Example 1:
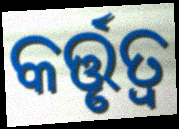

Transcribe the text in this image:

କର୍ତ୍ତୃତ୍ୱ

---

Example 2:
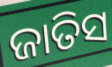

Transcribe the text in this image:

ଜାତିସ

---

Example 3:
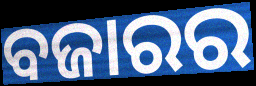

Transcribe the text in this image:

ବଜାରର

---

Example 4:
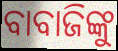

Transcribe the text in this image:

ବାବାଜିଙ୍କୁ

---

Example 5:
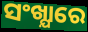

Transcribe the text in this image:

ସଂଖ୍ଯାରେ